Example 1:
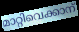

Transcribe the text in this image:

മാറ്റിവെക്കാന്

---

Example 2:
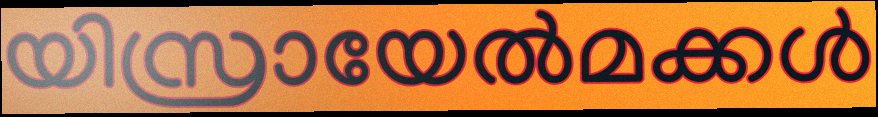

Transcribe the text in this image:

യിസ്രായേൽമക്കൾ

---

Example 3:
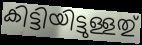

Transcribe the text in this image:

കിട്ടിയിട്ടുള്ളതു്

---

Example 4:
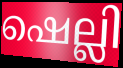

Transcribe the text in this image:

ഷെല്ലി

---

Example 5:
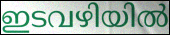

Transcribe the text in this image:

ഇടവഴിയിൽ